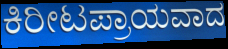
ಕಿರೀಟಪ್ರಾಯವಾದ